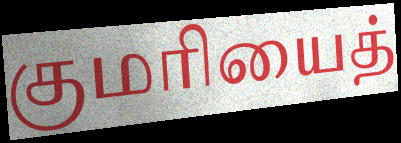
குமரியைத்